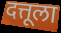
दत्तूला